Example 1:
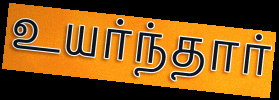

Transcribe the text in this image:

உயர்ந்தார்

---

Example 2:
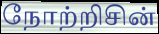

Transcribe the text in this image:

நோற்றிசின்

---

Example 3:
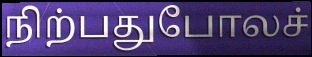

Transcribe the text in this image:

நிற்பதுபோலச்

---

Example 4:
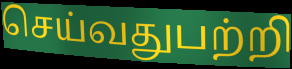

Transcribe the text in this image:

செய்வதுபற்றி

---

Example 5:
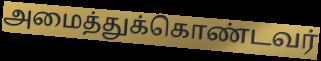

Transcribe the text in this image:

அமைத்துக்கொண்டவர்